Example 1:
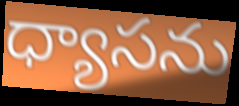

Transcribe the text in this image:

ధ్యాసను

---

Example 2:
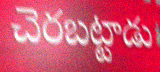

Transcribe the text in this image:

చెరబట్టాడు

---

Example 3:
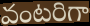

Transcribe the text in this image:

వంటరిగా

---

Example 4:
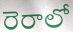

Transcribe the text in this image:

రెరాలో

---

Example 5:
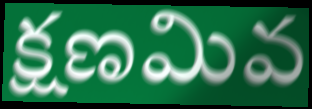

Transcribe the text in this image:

క్షణమివ